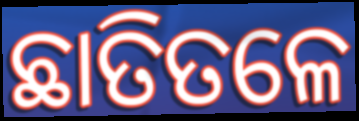
ଛାତିତଳେ